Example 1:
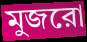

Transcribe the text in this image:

মুজরো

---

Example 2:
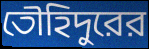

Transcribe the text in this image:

তৌহিদুরের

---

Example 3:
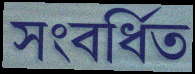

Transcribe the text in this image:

সংবর্ধিত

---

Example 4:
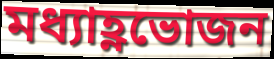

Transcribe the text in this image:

মধ্যাহ্ণভোজন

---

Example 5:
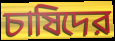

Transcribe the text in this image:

চাষিদের